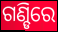
ଗଣ୍ଡିରେ